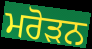
ਮਰੋੜਨ